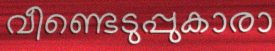
വീണ്ടെടുപ്പുകാരാ